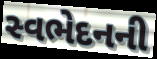
સ્વભેદનની